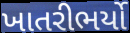
ખાતરીભર્યો